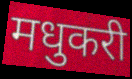
मधुकरी